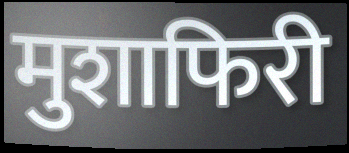
मुशाफिरी